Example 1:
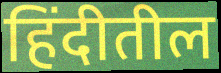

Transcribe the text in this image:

हिंदीतील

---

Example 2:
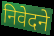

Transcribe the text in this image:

निवेदने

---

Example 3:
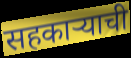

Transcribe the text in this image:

सहकाऱ्याची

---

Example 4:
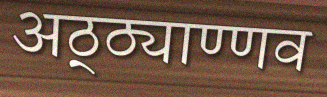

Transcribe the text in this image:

अठ्ठ्याण्णव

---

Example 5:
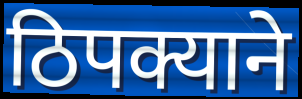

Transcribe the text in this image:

ठिपक्याने